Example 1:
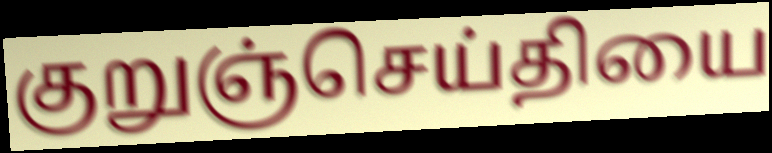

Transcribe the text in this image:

குறுஞ்செய்தியை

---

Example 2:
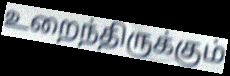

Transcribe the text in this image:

உறைந்திருக்கும்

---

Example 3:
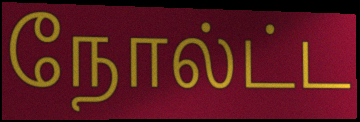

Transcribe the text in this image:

நோல்ட்ட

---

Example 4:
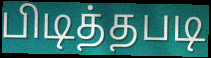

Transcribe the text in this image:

பிடித்தபடி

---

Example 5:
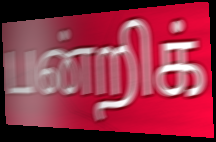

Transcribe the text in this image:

பன்றிக்